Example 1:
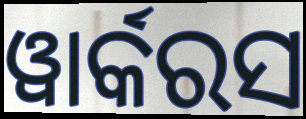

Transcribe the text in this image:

ୱାର୍କରସ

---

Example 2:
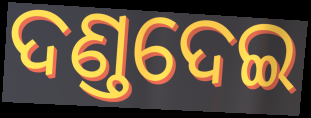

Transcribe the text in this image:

ଦଣ୍ଡଦେଇ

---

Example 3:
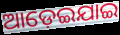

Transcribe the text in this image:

ଆଡ଼େଇଯାଇ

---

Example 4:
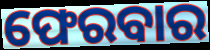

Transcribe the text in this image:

ଫେରବାର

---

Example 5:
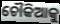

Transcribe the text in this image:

ଚୌକିଆକୁ